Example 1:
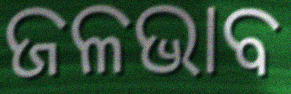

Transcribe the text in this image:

ଜଳଭାବ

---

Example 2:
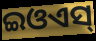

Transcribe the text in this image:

ଇଓଏସ୍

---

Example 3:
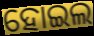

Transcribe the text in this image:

ହୋଇଲ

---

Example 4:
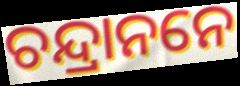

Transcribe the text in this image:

ଚନ୍ଦ୍ରାନନେ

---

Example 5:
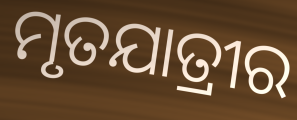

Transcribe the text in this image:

ମୃତଯାତ୍ରୀର